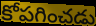
కోపగించడు